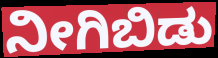
ನೀಗಿಬಿಡು